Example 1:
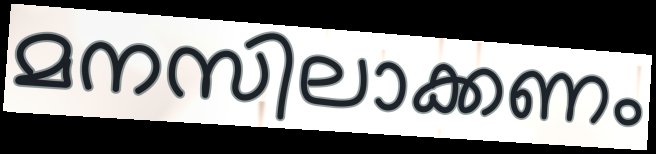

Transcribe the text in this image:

മനസിലാക്കണം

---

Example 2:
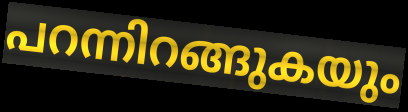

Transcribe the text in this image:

പറന്നിറങ്ങുകയും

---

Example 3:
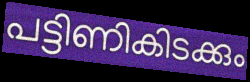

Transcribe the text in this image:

പട്ടിണികിടക്കും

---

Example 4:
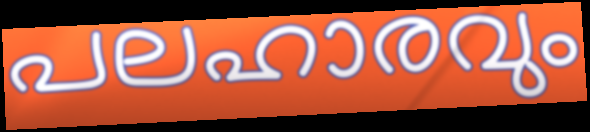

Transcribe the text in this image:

പലഹാരവും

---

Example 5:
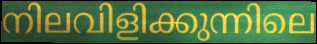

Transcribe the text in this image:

നിലവിളിക്കുന്നിലെ